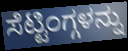
ಸೆಟ್ಟಿಂಗ್ಗಳನ್ನು